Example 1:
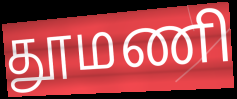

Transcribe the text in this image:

தூமணி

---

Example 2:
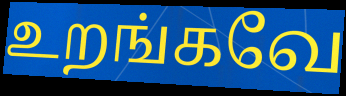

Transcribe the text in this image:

உறங்கவே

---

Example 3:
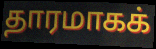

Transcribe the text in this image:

தாரமாகக்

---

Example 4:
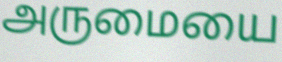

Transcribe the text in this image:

அருமையை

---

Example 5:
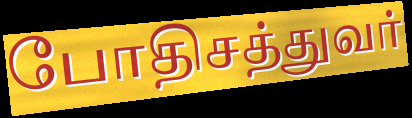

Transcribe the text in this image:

போதிசத்துவர்